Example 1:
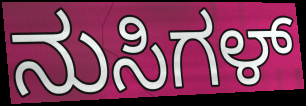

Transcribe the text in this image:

ನುಸಿಗಳ್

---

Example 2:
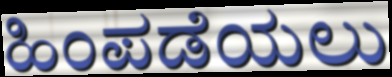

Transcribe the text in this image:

ಹಿಂಪಡೆಯಲು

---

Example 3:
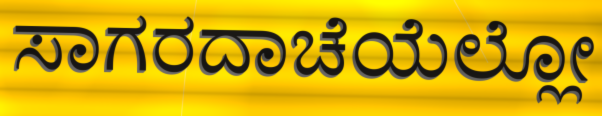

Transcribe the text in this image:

ಸಾಗರದಾಚೆಯೆಲ್ಲೋ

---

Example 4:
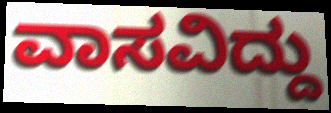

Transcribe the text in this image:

ವಾಸವಿದ್ದು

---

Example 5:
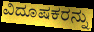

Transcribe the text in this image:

ವಿದೂಷಕರನ್ನು